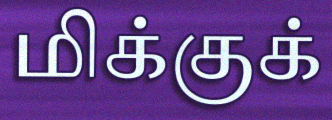
மிக்குக்